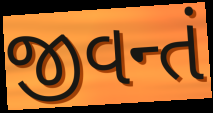
જીવન્તં